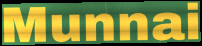
Munnai